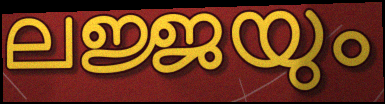
ലജ്ജയും